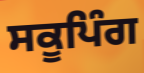
ਸਕੂਪਿੰਗ